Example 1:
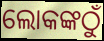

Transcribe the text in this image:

ଲୋକଙ୍କଠୁଁ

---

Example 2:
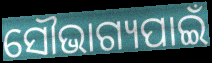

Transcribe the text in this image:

ସୌଭାଗ୍ୟପାଇଁ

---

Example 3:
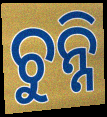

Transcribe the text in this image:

ଚୁନ୍ନି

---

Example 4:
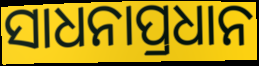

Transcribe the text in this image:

ସାଧନାପ୍ରଧାନ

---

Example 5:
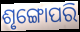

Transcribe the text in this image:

ଶୃଙ୍ଗୋପରି